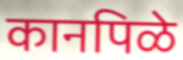
कानपिळे